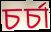
চর্চা